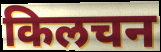
किलचन